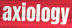
axiology